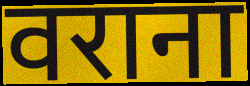
वराना